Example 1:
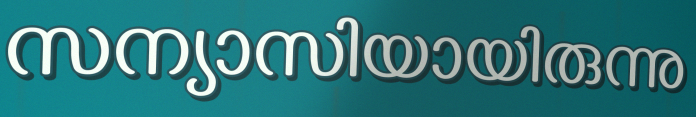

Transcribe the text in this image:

സന്യാസിയായിരുന്നു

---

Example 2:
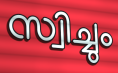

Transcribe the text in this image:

സ്വിച്ചും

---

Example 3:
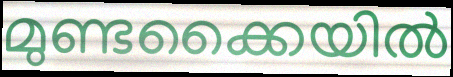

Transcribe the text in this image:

മുണ്ടക്കൈയിൽ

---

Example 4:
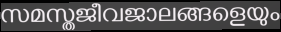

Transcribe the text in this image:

സമസ്തജീവജാലങ്ങളെയും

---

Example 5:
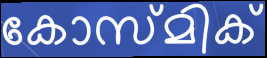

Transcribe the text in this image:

കോസ്മിക്